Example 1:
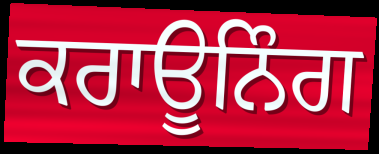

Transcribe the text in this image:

ਕਰਾਊਨਿੰਗ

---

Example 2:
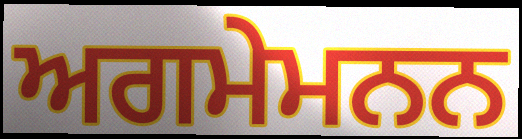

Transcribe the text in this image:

ਅਗਮੇਮਨਨ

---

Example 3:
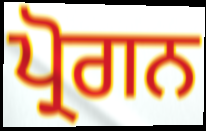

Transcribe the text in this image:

ਪ੍ਰੋਗਨ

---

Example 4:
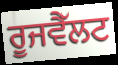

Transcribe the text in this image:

ਰੂਜਵੈੱਲਟ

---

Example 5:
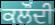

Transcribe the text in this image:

ਕਲੌਂਦੀ